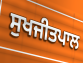
ਸੁਖਜੀਤਪਾਲ